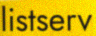
listserv